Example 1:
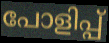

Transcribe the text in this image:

പോളിപ്പ്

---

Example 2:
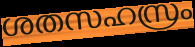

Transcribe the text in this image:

ശതസഹസ്രം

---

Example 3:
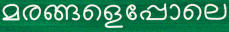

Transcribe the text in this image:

മരങ്ങളെപ്പോലെ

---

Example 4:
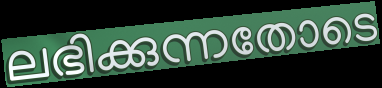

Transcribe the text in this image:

ലഭിക്കുന്നതോടെ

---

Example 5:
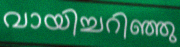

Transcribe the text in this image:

വായിച്ചറിഞ്ഞു